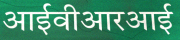
आईवीआरआई